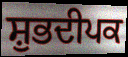
ਸ਼ੁਭਦੀਪਕ